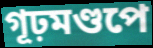
গূঢ়মণ্ডপে